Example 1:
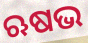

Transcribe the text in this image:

ଋଷଭ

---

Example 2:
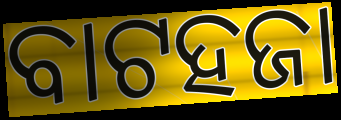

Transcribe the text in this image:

ବାଟହଜା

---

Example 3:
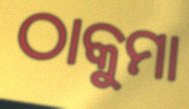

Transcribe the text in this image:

ଠାକୁମା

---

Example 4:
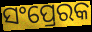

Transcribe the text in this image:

ସଂପ୍ରେରକ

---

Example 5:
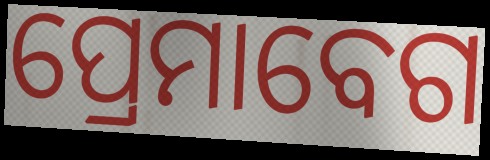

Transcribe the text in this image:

ପ୍ରେମାବେଗ